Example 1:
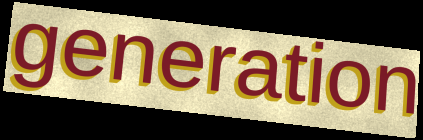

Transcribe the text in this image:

generation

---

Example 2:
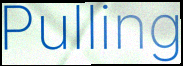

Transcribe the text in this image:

Pulling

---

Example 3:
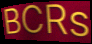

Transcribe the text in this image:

BCRs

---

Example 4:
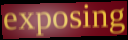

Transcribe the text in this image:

exposing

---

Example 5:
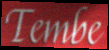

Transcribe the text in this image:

Tembe